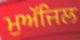
ਮੁਅੱਜਿਲ